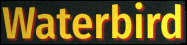
Waterbird